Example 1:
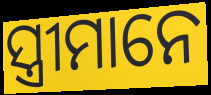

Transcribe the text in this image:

ସ୍ତ୍ରୀମାନେ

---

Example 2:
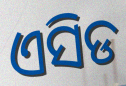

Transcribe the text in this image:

ଏସିଡ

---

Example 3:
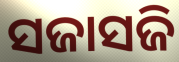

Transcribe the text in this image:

ସଜାସଜି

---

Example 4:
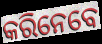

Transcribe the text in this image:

କରିନେବେ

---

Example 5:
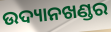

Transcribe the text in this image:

ଉଦ୍ୟାନଖଣ୍ଡର